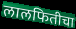
लालफितीचा